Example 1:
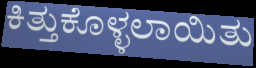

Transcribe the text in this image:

ಕಿತ್ತುಕೊಳ್ಳಲಾಯಿತು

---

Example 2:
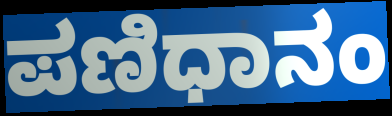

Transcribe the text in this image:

ಪಣಿಧಾನಂ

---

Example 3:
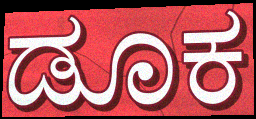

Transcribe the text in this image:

ಡೂಕ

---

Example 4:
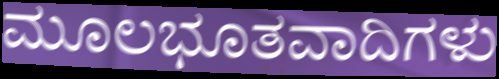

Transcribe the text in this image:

ಮೂಲಭೂತವಾದಿಗಳು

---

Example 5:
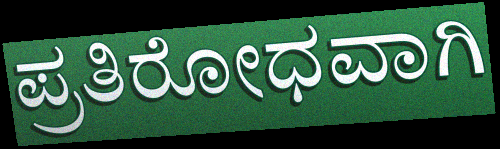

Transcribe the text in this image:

ಪ್ರತಿರೋಧವಾಗಿ